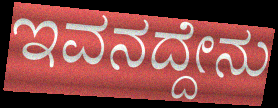
ಇವನದ್ದೇನು